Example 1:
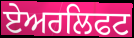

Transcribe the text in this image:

ਏਅਰਲਿਫਟ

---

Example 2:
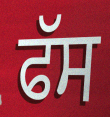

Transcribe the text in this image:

ਫੱਸ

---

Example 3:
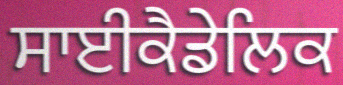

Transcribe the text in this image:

ਸਾਈਕੈਡੇਲਿਕ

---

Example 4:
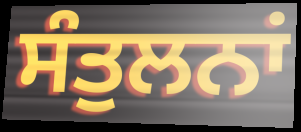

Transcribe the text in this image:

ਸੰਤੁਲਨਾਂ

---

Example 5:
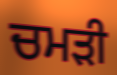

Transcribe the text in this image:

ਚਮਡ਼ੀ